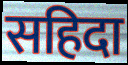
सहिदा